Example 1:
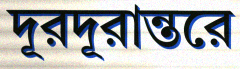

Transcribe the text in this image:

দূরদূরান্তরে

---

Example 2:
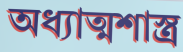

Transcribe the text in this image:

অধ্যাত্মশাস্ত্র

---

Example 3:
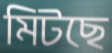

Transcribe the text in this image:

মিটছে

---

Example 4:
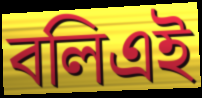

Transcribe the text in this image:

বলিএই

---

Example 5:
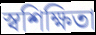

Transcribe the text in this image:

স্বশিক্ষিতা